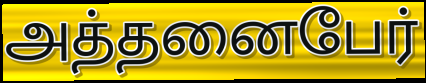
அத்தனைபேர்